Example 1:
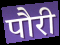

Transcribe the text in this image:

पौरी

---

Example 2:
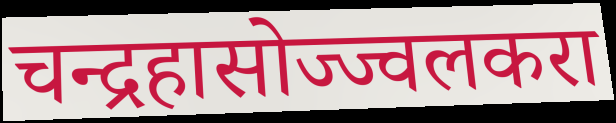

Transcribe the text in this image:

चन्द्रहासोज्ज्वलकरा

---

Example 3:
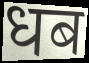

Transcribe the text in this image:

धब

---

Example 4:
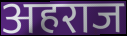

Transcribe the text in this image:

अहराज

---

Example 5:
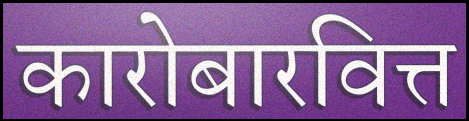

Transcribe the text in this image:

कारोबारवित्त